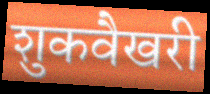
शुकवैखरी